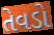
તેવડો